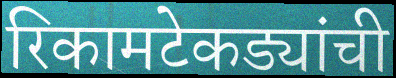
रिकामटेकड्यांची